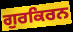
ਗੁਰਕਿਰਨ